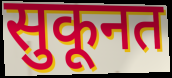
सुकूनत